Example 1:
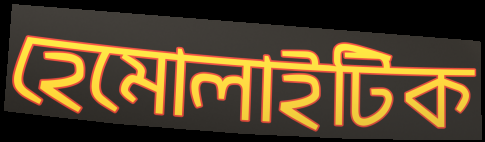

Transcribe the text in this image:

হেমোলাইটিক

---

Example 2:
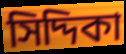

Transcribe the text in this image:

সিদ্দিকা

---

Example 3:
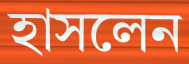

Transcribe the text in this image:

হাসলেন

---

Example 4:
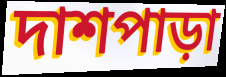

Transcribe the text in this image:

দাশপাড়া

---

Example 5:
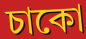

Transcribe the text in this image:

চাকো